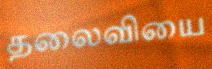
தலைவியை